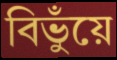
বিভুঁয়ে